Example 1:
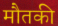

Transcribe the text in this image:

मौतकी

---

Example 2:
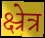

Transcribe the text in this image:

क्ष्रेत्र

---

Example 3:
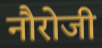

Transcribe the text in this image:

नौरोजी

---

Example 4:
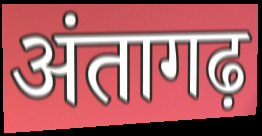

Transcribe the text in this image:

अंतागढ़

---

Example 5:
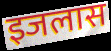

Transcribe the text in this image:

इजलास